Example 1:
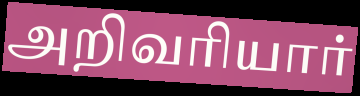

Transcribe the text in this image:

அறிவரியார்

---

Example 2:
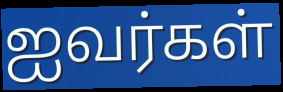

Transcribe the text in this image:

ஐவர்கள்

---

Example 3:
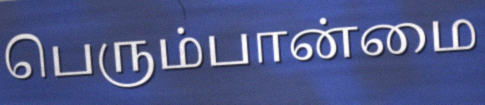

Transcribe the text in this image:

பெரும்பான்மை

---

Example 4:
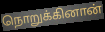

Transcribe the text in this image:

நொறுக்கினான்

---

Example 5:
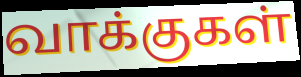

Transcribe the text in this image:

வாக்குகள்